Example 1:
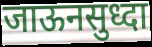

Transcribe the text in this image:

जाऊनसुध्दा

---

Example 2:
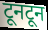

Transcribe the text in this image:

टूनटून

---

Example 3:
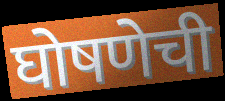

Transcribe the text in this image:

घोषणेची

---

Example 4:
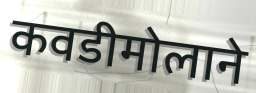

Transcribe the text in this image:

कवडीमोलाने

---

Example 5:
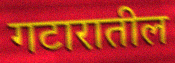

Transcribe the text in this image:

गटारातील